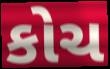
કોચ